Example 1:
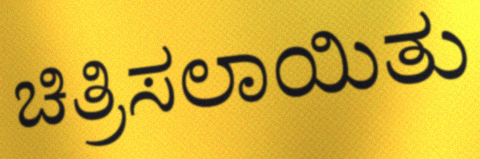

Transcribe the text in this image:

ಚಿತ್ರಿಸಲಾಯಿತು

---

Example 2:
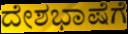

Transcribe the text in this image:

ದೇಶಭಾಷೆಗೆ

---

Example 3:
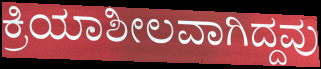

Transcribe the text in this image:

ಕ್ರಿಯಾಶೀಲವಾಗಿದ್ದವು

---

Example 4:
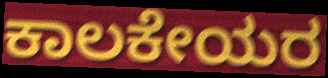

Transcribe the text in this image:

ಕಾಲಕೇಯರ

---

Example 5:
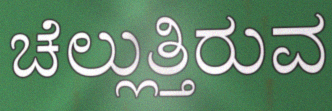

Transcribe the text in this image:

ಚೆಲ್ಲುತ್ತಿರುವ